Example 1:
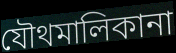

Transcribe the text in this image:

যৌথমালিকানা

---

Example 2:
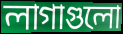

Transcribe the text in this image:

লাগাগুলো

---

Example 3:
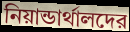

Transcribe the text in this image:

নিয়ান্ডার্থালদের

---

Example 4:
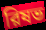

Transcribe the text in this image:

রিষভ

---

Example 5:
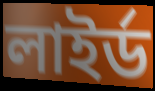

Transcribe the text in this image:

লাইর্ড